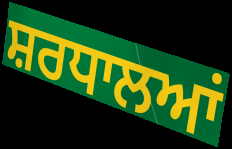
ਸ਼ਰਧਾਲਆਂ